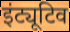
इंट्यूटिव